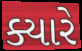
ક્યારે